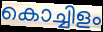
കൊച്ചിളം